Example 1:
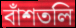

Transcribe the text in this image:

বাঁশতলি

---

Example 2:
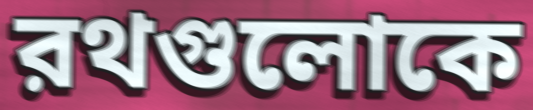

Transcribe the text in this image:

রথগুলোকে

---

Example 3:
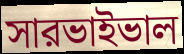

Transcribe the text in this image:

সারভাইভাল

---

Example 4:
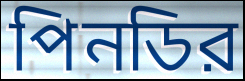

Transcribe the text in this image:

পিনডির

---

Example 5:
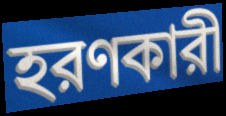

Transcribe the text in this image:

হরণকারী